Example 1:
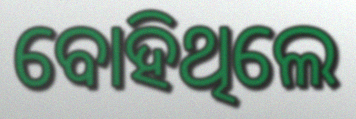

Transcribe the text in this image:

ବୋହିଥିଲେ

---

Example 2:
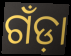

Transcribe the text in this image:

ଗଁଡ଼ା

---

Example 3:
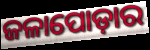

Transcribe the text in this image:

ଜଳାପୋଡ଼ାର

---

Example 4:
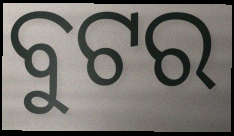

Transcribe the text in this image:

ବୁଟର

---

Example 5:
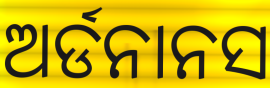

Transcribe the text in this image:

ଅର୍ଡନାନସ